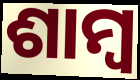
ଶାମ୍ୱ